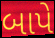
બાપે